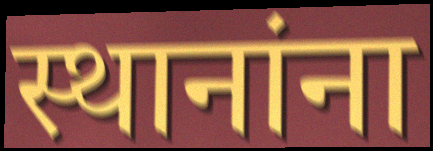
स्थानांना